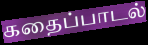
கதைப்பாடல்